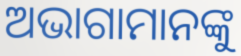
ଅଭାଗାମାନଙ୍କୁ